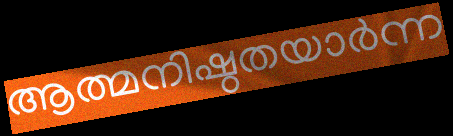
ആത്മനിഷ്ഠതയാർന്ന